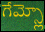
గేమ్స్లో